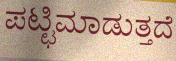
ಪಟ್ಟಿಮಾಡುತ್ತದೆ